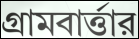
গ্রামবার্ত্তার